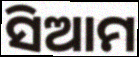
ସିଆମ